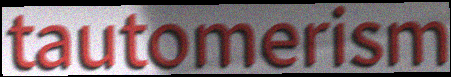
tautomerism